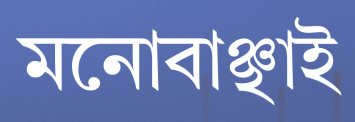
মনোবাঞ্ছাই